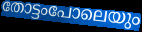
തോട്ടംപോലെയും